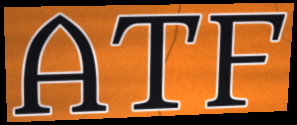
ATF